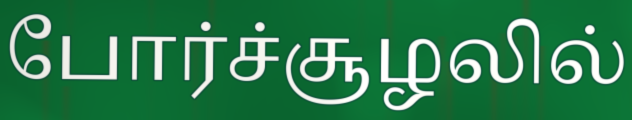
போர்ச்சூழலில்